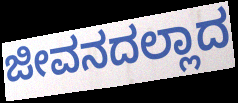
ಜೀವನದಲ್ಲಾದ